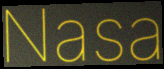
Nasa